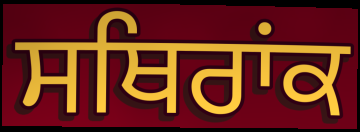
ਸਥਿਰਾਂਕ